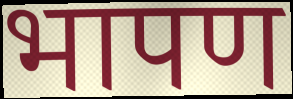
भापण